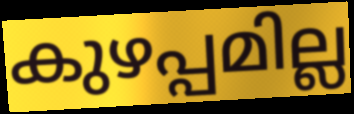
കുഴപ്പമില്ല